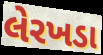
લેરખડા